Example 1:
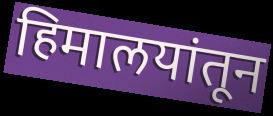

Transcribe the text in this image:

हिमालयांतून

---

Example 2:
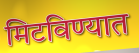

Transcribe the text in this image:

मिटविण्यात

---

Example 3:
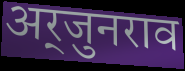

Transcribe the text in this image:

अर्जुनराव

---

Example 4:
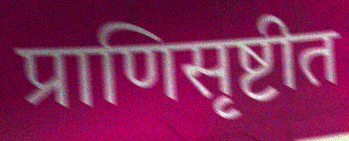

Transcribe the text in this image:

प्राणिसृष्टीत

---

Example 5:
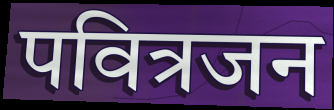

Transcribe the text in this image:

पवित्रजन